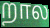
றால